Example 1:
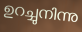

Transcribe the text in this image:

ഉറച്ചുനിന്നു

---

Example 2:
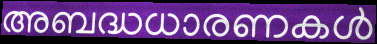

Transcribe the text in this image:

അബദ്ധധാരണകൾ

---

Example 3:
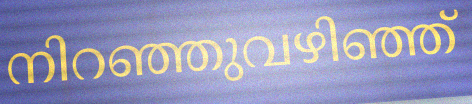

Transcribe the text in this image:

നിറഞ്ഞുവഴിഞ്ഞ്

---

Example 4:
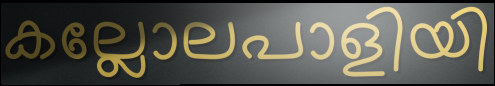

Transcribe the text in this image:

കല്ലോലപാളിയി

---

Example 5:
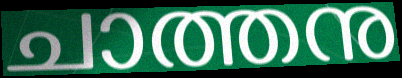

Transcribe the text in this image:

ചാത്തനു